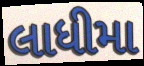
લાધીમા